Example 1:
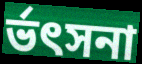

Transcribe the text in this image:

র্ভৎসনা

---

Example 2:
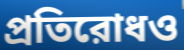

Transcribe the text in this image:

প্রতিরোধও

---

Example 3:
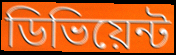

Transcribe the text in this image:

ডিভিয়েন্ট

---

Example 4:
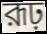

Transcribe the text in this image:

রূঢ়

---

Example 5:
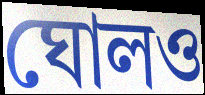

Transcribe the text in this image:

ঘোলও